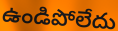
ఉండిపోలేదు